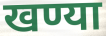
खण्या